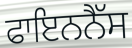
ਫਾਇਨਨੈੱਸ